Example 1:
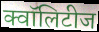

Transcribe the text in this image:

क्वॉलिटीज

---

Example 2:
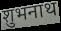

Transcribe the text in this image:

शुभनाथ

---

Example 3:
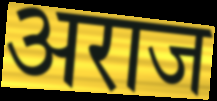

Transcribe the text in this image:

अराज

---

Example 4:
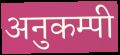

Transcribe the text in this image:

अनुकम्पी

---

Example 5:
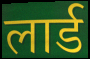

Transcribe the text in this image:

लार्ड